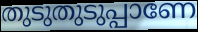
തുടുതുടുപ്പാണേ